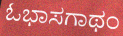
ಓಭಾಸಗಾಥಂ